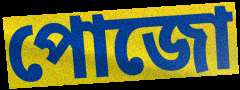
পোজো